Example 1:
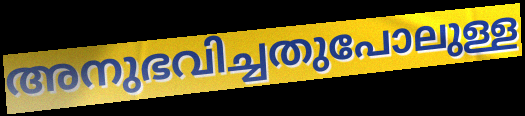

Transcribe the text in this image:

അനുഭവിച്ചതുപോലുള്ള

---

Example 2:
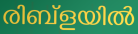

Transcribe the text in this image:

രിബ്ളയിൽ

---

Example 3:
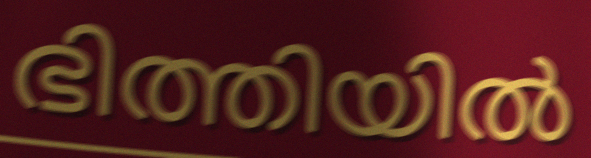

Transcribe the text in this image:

ഭിത്തിയിൽ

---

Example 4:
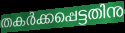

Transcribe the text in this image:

തകർക്കപ്പെട്ടതിനു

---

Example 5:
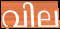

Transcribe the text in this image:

വില